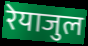
रेयाजुल